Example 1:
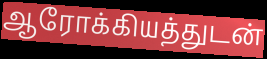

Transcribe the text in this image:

ஆரோக்கியத்துடன்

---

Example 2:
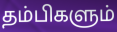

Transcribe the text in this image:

தம்பிகளும்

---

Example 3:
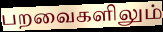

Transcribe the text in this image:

பறவைகளிலும்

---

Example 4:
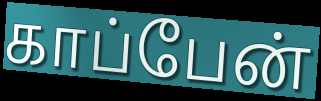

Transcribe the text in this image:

காப்பேன்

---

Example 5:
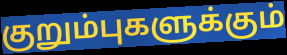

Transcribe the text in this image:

குறும்புகளுக்கும்